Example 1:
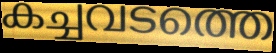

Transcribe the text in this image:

കച്ചവടത്തെ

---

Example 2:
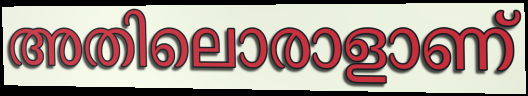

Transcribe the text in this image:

അതിലൊരാളാണ്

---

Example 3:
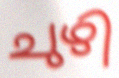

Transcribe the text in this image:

ചുഴി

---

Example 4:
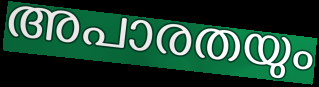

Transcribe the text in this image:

അപാരതയും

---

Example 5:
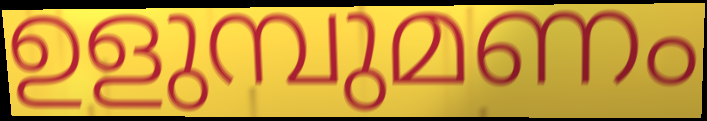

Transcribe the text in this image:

ഉളുമ്പുമണം